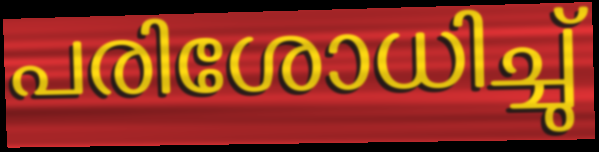
പരിശോധിച്ചു്